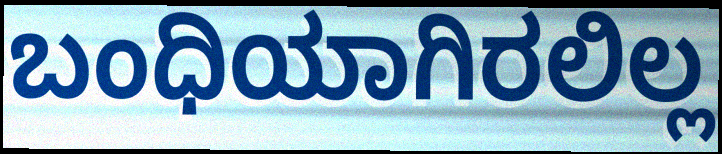
ಬಂಧಿಯಾಗಿರಲಿಲ್ಲ